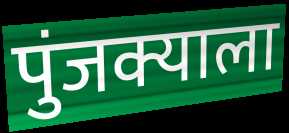
पुंजक्याला